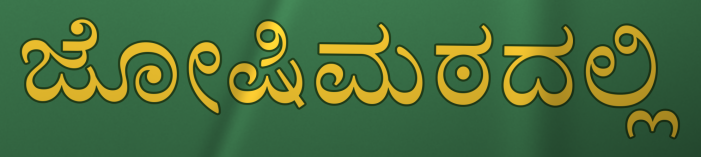
ಜೋಷಿಮಠದಲ್ಲಿ